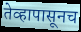
तेव्हापासूनच